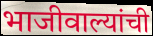
भाजीवाल्यांची